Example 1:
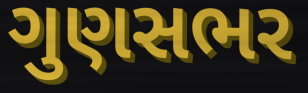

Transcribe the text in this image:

ગુણસભર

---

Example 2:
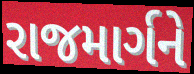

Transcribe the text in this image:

રાજમાર્ગને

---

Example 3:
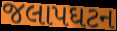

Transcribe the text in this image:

જલાપઘટન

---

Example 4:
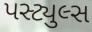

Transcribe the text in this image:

પસ્ટ્યુલ્સ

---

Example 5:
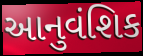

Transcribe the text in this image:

આનુવંશિક